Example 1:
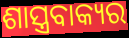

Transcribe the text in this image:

ଶାସ୍ତ୍ରବାକ୍ୟର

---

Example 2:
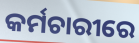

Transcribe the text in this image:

କର୍ମଚାରୀରେ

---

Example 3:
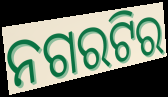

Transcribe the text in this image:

ନଗରଟିର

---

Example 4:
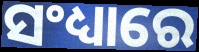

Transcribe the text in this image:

ସଂଧ୍ୟାରେ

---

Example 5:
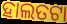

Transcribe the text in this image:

ହାଲତଟା